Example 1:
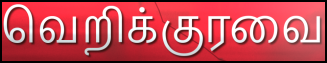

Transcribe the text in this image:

வெறிக்குரவை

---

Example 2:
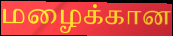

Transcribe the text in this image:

மழைக்கான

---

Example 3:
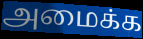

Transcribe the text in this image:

அமைக்க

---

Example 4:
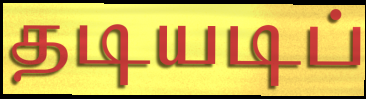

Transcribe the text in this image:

தடியடிப்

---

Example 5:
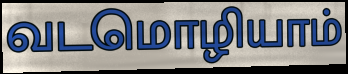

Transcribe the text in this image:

வடமொழியாம்